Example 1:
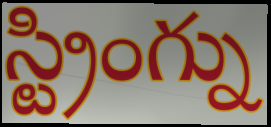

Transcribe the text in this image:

స్ట్రింగ్ను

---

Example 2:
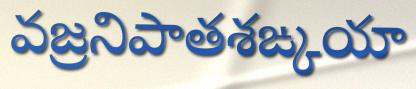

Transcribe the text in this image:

వజ్రనిపాతశఙ్కయా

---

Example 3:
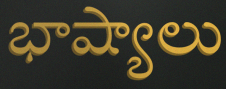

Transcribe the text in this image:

భాష్యాలు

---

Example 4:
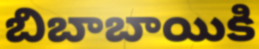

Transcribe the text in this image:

బిబాబాయికి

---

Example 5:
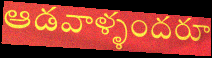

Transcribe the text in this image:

ఆడవాళ్ళందరూ